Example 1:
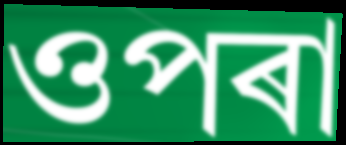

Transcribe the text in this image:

ওপৰা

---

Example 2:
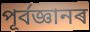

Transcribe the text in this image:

পূৰ্বজ্ঞানৰ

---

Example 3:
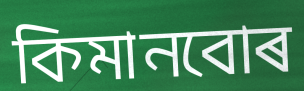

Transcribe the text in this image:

কিমানবোৰ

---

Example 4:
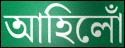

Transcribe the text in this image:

আহিলোঁ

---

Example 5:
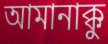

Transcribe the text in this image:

আমানাক্কু